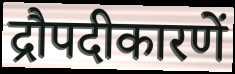
द्रौपदीकारणें